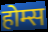
होम्स